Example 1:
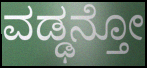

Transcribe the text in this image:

ವಡ್ಢನ್ತೋ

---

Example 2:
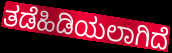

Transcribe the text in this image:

ತಡೆಹಿಡಿಯಲಾಗಿದೆ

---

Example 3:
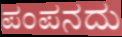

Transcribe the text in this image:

ಪಂಪನದು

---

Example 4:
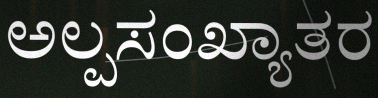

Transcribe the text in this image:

ಅಲ್ಪಸಂಖ್ಯಾತರ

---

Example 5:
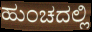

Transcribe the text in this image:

ಹುಂಚದಲ್ಲಿ